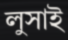
লুসাই